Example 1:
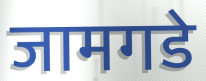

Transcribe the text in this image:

जामगडे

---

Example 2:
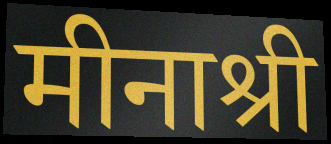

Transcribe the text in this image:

मीनाश्री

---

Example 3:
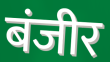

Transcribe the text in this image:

बंजीर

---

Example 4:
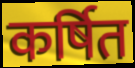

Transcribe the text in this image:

कर्षित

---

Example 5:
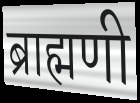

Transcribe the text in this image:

ब्राह्मणी